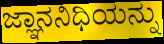
ಜ್ಞಾನನಿಧಿಯನ್ನು